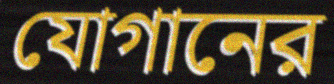
যোগানের